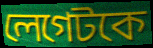
লেগেটকে